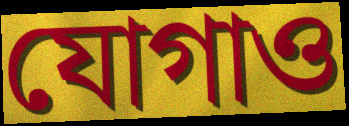
যোগাও